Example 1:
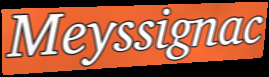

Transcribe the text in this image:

Meyssignac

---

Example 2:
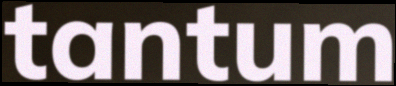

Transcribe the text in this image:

tantum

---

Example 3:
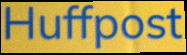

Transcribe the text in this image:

Huffpost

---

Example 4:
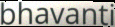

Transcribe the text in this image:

bhavanti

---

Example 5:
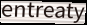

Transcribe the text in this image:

entreaty